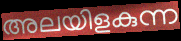
അലയിളകുന്ന